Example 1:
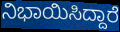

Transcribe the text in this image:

ನಿಭಾಯಿಸಿದ್ದಾರೆ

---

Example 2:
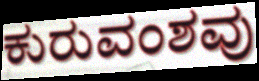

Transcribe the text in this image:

ಕುರುವಂಶವು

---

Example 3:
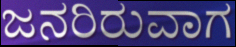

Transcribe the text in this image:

ಜನರಿರುವಾಗ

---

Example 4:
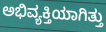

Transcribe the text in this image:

ಅಭಿವ್ಯಕ್ತಿಯಾಗಿತ್ತು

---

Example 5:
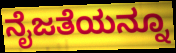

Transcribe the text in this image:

ನೈಜತೆಯನ್ನೂ